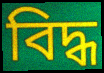
বিদ্ধ